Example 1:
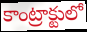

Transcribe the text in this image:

కాంట్రాక్టులో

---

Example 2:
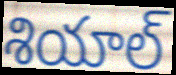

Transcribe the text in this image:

శియాల్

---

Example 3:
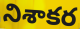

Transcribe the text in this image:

నిశాకర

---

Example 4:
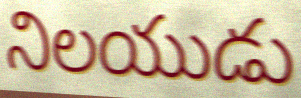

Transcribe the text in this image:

నిలయుడు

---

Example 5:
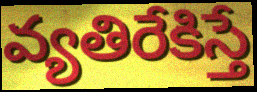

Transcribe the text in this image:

వ్యతిరేకిస్తే